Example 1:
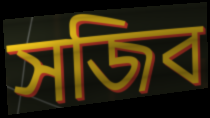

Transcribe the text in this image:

সজিব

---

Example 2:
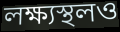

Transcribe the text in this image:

লক্ষ্যস্থলও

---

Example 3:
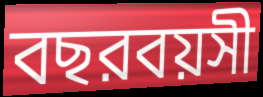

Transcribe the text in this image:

বছরবয়সী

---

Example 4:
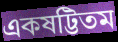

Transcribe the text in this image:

একষট্টিতম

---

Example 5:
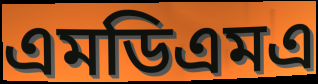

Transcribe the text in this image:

এমডিএমএ